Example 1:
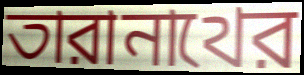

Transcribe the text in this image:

তারানাথের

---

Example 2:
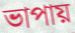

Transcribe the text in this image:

ভাপায়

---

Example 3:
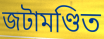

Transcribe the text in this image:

জটামণ্ডিত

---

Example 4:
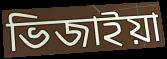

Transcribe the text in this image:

ভিজাইয়া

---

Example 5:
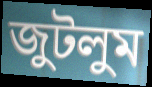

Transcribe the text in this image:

জুটলুম